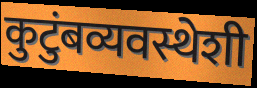
कुटुंबव्यवस्थेशी